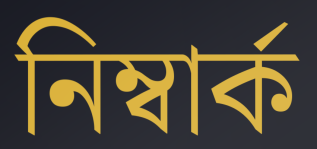
নিম্বাৰ্ক